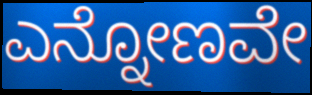
ಎನ್ನೋಣವೇ